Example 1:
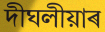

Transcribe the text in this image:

দীঘলীয়াৰ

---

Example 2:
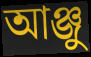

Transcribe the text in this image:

আঞ্জু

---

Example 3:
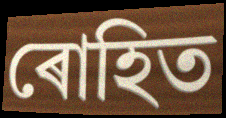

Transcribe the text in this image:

ৰোহিত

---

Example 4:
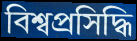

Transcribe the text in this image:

বিশ্বপ্ৰসিদ্ধি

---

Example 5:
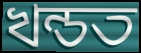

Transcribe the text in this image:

খন্ডত